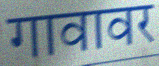
गावावर